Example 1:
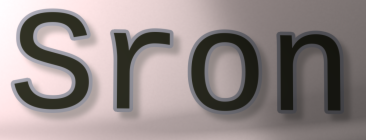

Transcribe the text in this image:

Sron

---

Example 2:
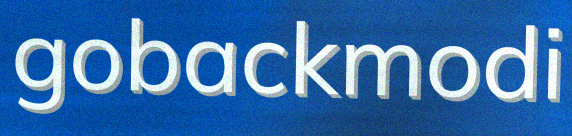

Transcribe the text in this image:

gobackmodi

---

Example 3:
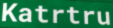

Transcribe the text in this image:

Katrtru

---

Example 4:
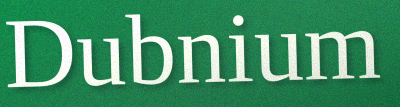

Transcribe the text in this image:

Dubnium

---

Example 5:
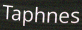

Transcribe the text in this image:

Taphnes